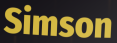
Simson